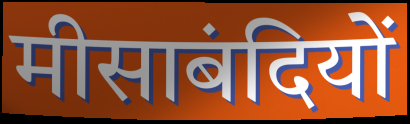
मीसाबंदियों